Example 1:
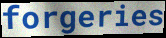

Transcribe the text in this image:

forgeries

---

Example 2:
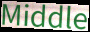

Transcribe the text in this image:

Middle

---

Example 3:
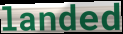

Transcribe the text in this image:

landed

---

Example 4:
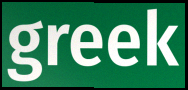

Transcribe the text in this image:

greek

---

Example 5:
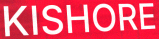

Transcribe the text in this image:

KISHORE